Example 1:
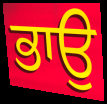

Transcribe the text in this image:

ਭਾਉ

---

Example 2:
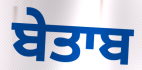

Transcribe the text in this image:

ਬੇਤਾਬ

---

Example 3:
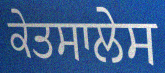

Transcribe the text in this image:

ਕੇਤਸਾਲੇਸ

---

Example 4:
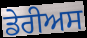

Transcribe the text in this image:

ਡੇਰੀਅਸ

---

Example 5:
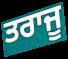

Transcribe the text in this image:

ਤਰਾਜੂ